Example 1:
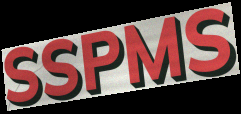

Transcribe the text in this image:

SSPMS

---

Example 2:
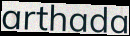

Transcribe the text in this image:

arthada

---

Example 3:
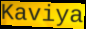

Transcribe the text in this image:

Kaviya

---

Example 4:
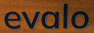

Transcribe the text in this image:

evalo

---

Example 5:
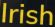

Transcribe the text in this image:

Irish